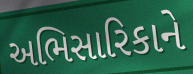
અભિસારિકાને